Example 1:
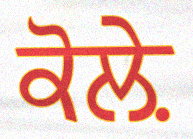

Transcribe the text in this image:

ਕੋਲ਼ੇ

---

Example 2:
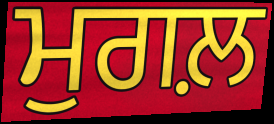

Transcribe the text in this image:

ਮੁਗਲ਼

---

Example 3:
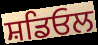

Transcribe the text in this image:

ਸ਼ਡਿਓਲ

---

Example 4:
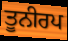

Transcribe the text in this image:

ਤੂਨੀਰਪ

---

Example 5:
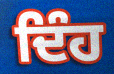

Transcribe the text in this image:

ਦਿੰਹ